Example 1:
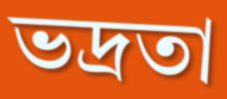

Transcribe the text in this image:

ভদ্রতা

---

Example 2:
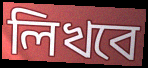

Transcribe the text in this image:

লিখবে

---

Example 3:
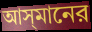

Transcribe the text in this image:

আস্‌মানের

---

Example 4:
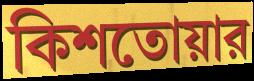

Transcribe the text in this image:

কিশতোয়ার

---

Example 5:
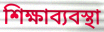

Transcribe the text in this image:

শিক্ষাব্যবস্থা